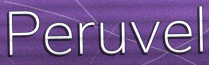
Peruvel